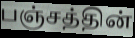
பஞ்சத்தின்